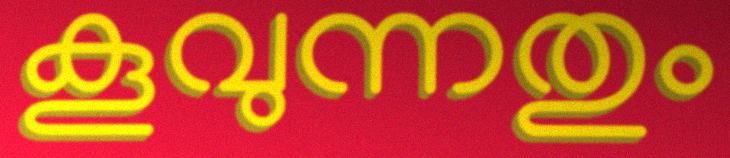
കൂവുന്നതും